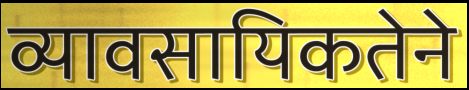
व्यावसायिकतेने